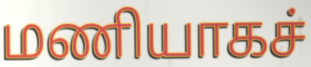
மணியாகச்